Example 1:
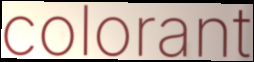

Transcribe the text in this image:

colorant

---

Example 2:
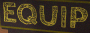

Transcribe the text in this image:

EQUIP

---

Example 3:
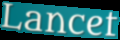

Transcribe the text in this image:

Lancet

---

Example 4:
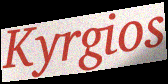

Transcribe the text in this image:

Kyrgios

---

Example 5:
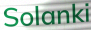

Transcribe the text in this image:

Solanki